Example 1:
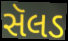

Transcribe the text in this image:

સૅલડ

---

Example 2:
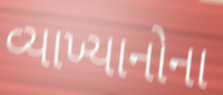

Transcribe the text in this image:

વ્યાખ્યાનોના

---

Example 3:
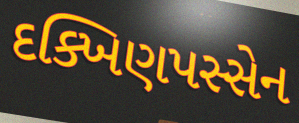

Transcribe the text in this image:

દક્ખિણપસ્સેન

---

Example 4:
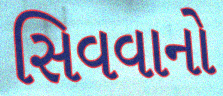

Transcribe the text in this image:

સિવવાનો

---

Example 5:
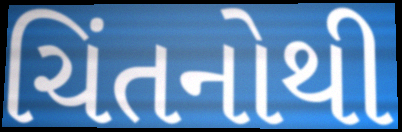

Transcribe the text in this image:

ચિંતનોથી